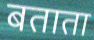
बताता